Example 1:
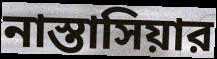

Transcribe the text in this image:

নাস্তাসিয়ার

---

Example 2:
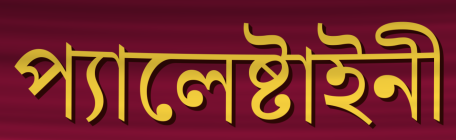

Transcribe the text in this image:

প্যালেষ্টাইনী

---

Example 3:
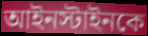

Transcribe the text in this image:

আইনস্টাইনকে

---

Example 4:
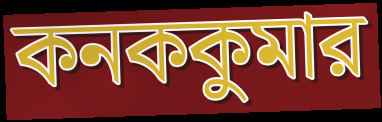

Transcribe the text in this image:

কনককুমার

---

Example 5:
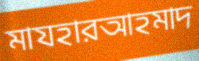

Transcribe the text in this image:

মাযহারআহমাদ